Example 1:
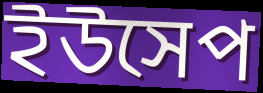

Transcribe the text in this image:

ইউসেপ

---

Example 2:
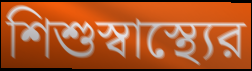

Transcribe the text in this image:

শিশুস্বাস্থ্যের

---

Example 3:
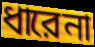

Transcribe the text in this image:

ধারেনা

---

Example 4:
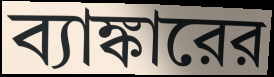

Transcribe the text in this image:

ব্যাঙ্কারের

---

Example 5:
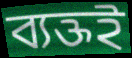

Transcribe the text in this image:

ব্যক্তই